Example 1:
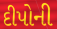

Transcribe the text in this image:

દીપોની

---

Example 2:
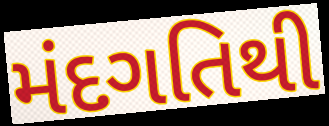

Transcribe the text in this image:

મંદગતિથી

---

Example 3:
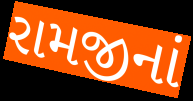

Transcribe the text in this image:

રામજીનાં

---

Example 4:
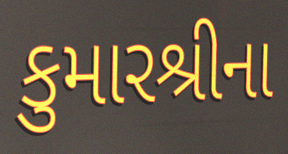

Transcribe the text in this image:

કુમારશ્રીના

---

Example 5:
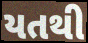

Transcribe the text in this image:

યતથી